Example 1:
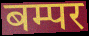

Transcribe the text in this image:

बम्पर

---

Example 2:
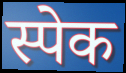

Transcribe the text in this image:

स्पेक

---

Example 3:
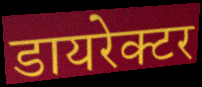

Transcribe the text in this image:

डायरेक्टर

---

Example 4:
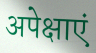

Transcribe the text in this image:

अपेक्षाएं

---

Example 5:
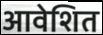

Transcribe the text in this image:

आवेशित